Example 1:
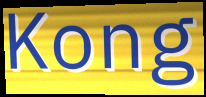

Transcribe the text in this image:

Kong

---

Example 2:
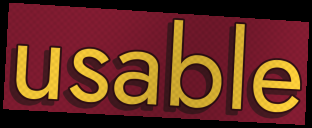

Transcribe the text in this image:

usable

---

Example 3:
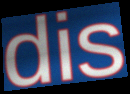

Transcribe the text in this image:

dis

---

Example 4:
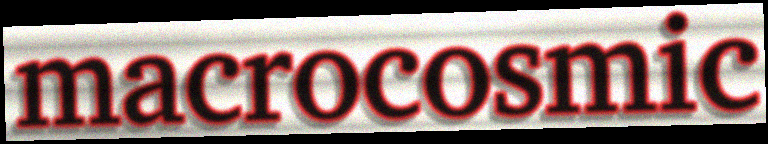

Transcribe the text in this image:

macrocosmic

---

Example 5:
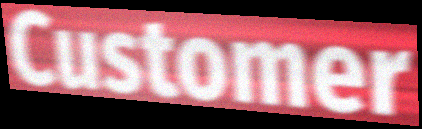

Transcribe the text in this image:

Customer